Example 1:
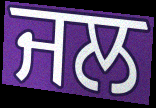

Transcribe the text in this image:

ਜਲ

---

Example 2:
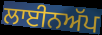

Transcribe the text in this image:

ਲਾਈਨਅੱਪ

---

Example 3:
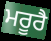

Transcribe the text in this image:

ਮਰੂਰੈ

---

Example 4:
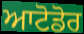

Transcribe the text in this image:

ਆਟੋਡੋਰ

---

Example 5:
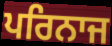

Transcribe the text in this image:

ਪਰਿਨਾਜ